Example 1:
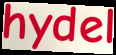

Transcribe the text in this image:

hydel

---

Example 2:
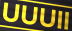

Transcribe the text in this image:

UUUII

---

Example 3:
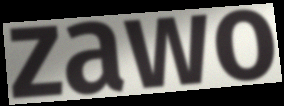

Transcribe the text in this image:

zawo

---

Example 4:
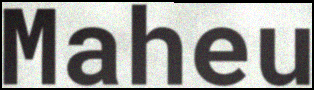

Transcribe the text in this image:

Maheu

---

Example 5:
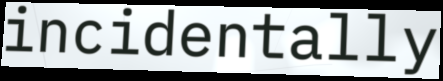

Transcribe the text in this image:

incidentally